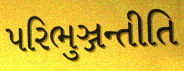
પરિભુઞ્જન્તીતિ